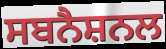
ਸਬਨੈਸ਼ਨਲ